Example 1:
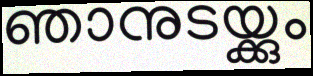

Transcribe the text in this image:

ഞാനുടയ്ക്കും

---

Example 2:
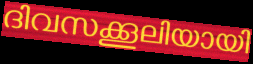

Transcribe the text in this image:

ദിവസക്കൂലിയായി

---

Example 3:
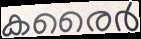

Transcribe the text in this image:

കരൈർ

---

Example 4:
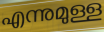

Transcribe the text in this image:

എന്നുമുള്ള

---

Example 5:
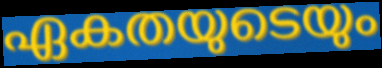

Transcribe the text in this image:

ഏകതയുടെയും